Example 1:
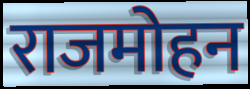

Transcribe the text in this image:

राजमोहन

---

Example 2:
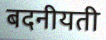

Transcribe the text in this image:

बदनीयती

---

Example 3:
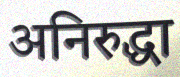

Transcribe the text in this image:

अनिरुद्धा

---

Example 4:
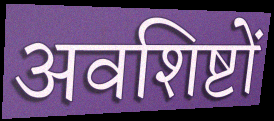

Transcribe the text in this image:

अवशिष्टों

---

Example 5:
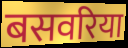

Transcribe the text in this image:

बसवरिया